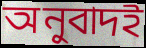
অনুবাদই